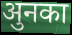
अुनका